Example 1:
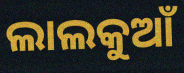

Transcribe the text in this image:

ଲାଲକୁଆଁ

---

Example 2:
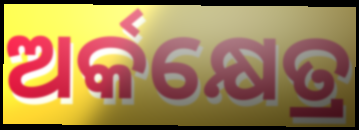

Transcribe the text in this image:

ଅର୍କକ୍ଷେତ୍ର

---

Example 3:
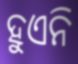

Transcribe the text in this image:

ହୁଏନି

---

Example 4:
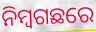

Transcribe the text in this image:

ନିମ୍ବଗଛରେ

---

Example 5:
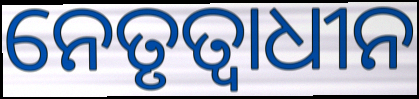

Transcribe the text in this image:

ନେତୃତ୍ୱାଧୀନ